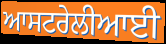
ਆਸਟਰੇਲੀਆਈ